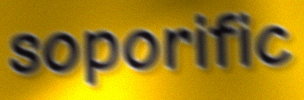
soporific